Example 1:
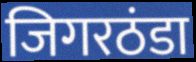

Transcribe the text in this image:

जिगरठंडा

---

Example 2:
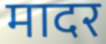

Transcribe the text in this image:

मादर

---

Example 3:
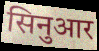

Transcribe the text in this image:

सिनुआर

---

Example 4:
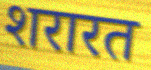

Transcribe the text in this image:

शरारत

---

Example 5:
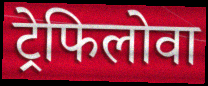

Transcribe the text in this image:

ट्रेफिलोवा